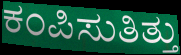
ಕಂಪಿಸುತಿತ್ತು